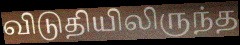
விடுதியிலிருந்த